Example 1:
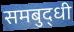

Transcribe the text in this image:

समबुद्धी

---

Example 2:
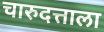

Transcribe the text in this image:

चारुदत्ताला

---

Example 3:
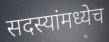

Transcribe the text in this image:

सदस्यांमध्येच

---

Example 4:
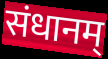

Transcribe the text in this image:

संधानम्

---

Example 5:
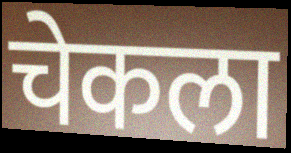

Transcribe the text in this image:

चेकला